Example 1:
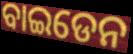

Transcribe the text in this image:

ବାଇଡେନ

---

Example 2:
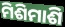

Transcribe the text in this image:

ମିଶିମାଶି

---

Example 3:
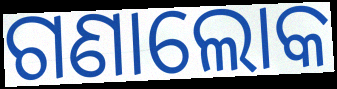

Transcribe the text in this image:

ଗଣାଲୋକ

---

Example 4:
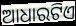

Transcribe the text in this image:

ଆଧାରଟିଏ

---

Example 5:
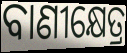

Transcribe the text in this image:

ବାଣୀକ୍ଷେତ୍ର